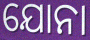
ଯୋନା